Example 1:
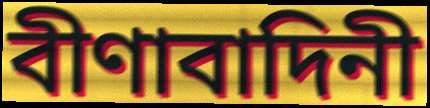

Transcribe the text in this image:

বীণাবাদিনী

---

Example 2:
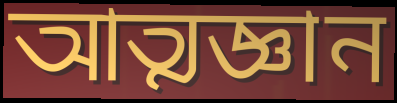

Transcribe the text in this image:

আত্মজ্ঞান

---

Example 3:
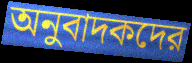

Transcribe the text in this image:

অনুবাদকদের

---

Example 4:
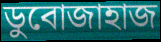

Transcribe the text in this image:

ডুবোজাহাজ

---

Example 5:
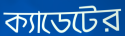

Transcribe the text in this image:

ক্যাডেটের